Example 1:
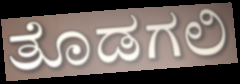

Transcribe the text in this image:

ತೊಡಗಲಿ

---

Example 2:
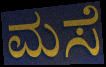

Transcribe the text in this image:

ಮಸೆ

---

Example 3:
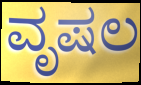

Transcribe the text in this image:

ವೃಷಲ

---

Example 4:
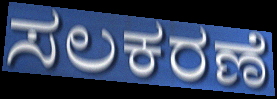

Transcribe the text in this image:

ಸಲಕರಣೆ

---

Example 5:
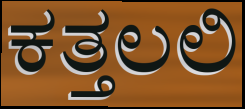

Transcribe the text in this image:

ಕತ್ತಲಲಿ